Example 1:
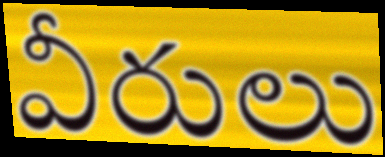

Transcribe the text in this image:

వీరులు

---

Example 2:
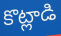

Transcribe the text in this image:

కొట్లాడి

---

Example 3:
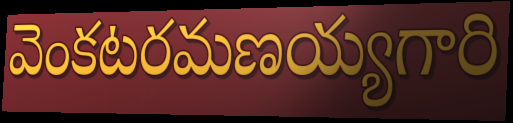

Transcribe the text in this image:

వెంకటరమణయ్యగారి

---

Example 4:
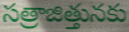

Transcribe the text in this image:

సత్రాజిత్తునకు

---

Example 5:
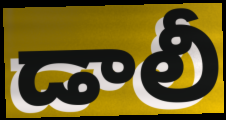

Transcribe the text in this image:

డాలీ